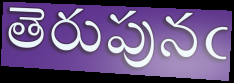
తెరుపునఁ